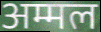
अम्मल